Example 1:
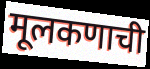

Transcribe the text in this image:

मूलकणाची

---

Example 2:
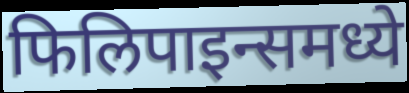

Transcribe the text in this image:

फिलिपाइन्समध्ये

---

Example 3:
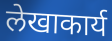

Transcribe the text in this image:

लेखाकार्य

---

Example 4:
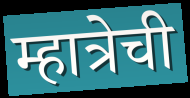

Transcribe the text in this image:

म्हात्रेची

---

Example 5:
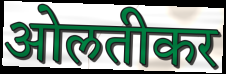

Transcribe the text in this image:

ओलतीकर